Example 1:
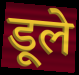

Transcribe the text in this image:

डूले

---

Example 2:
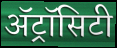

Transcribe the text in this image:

ॲट्रॉसिटी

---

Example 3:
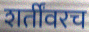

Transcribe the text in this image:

शर्तींवरच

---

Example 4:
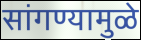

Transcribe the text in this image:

सांगण्यामुळे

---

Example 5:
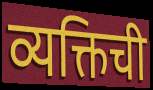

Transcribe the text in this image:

व्यक्तिची